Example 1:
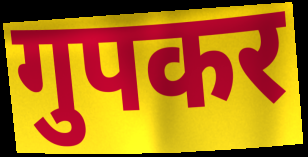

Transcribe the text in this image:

गुपकर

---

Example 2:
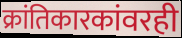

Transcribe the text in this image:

क्रांतिकारकांवरही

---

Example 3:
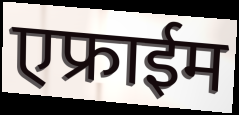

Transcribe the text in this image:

एफ्राईम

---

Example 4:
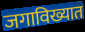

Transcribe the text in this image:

जगाविख्यात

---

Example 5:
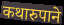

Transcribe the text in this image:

कथारुपाने